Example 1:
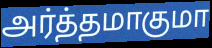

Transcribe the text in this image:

அர்த்தமாகுமா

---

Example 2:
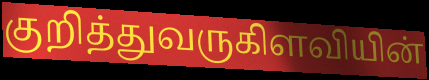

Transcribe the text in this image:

குறித்துவருகிளவியின்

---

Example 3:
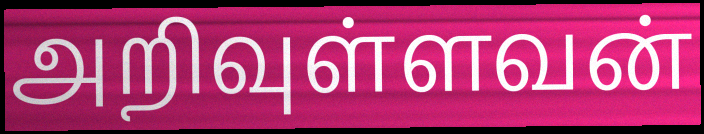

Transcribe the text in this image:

அறிவுள்ளவன்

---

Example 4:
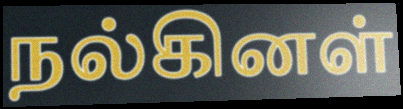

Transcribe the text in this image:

நல்கினள்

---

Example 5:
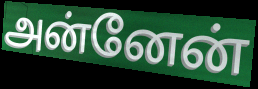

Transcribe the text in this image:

அன்னேன்